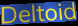
Deltoid